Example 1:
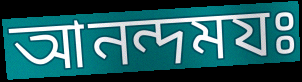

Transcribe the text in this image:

আনন্দমযঃ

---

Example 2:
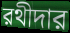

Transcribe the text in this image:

রথীদার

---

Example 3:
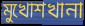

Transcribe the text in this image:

মুখোশখানা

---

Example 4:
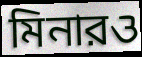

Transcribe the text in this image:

মিনারও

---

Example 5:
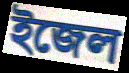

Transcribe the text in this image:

ইজেল